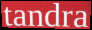
tandra